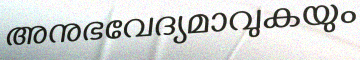
അനുഭവേദ്യമാവുകയും